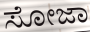
ಸೋಜಾ